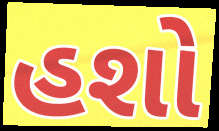
હશો